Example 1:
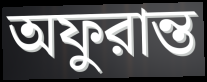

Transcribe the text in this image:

অফুরান্ত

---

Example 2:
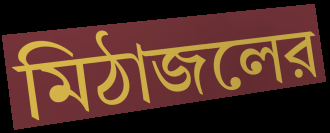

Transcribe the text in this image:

মিঠাজলের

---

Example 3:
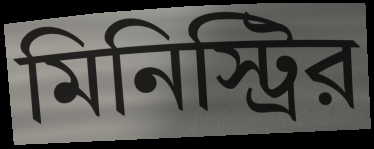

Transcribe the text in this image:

মিনিস্ট্রির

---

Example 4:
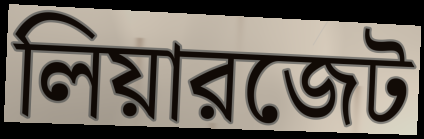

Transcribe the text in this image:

লিয়ারজেট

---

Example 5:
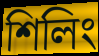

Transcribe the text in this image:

শিলিং